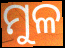
ମୁଳ